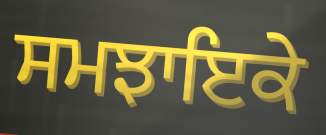
ਸਮਝਾਇਕੇ